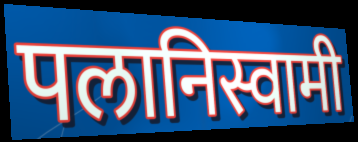
पलानिस्वामी